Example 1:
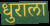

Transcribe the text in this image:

धुराला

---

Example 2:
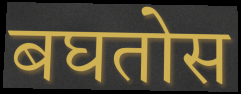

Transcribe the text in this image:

बघतोस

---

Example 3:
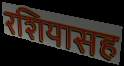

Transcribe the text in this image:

रशियासह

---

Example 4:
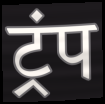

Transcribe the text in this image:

ट्रंप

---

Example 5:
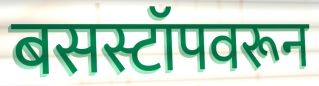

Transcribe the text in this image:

बसस्टॉपवरून